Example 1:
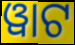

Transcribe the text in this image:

ୱାଟ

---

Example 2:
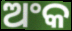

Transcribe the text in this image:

ଅଂକ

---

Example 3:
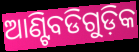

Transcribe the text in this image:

ଆଣ୍ଟିବଡିଗୁଡ଼ିକ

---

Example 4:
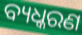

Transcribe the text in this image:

ବ୍ୟଧ୍କରଣ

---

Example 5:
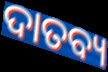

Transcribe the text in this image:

ଦାତବ୍ୟ